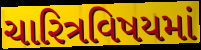
ચારિત્રવિષયમાં